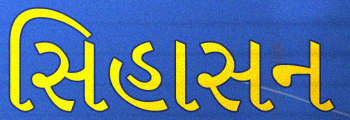
સિહાસન